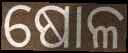
ଷୋଳ